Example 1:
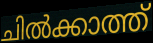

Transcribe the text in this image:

ചിൽക്കാത്ത്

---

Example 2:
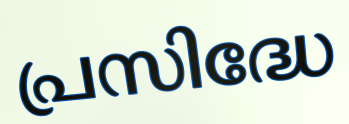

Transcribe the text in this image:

പ്രസിദ്ധേ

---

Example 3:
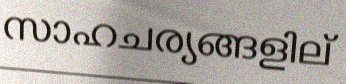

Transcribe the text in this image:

സാഹചര്യങ്ങളില്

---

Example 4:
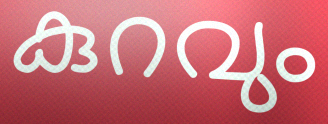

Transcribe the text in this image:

കുറവും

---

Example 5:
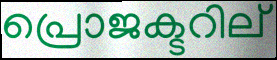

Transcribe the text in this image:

പ്രൊജക്ടറില്